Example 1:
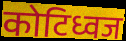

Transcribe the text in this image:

कोटिध्वज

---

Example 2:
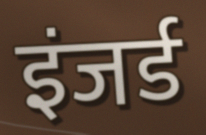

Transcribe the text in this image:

इंजर्ड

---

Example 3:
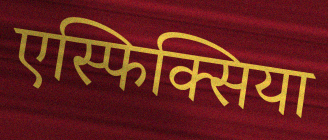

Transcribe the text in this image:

एस्फिक्सिया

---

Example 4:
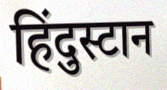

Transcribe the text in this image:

हिंदुस्टान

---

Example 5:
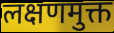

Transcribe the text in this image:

लक्षणमुक्त